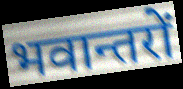
भवान्तरों